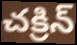
చక్రిన్